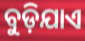
ବୁଡ଼ିଯାଏ